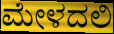
ಮೇಳದಲಿ